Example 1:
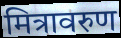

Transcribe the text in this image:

मित्रावरुण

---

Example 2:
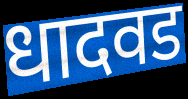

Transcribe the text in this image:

धादवड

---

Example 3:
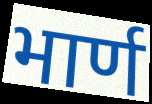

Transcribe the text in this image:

भार्ण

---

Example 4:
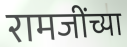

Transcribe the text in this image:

रामजींच्या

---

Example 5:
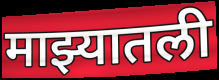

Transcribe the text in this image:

माझ्यातली